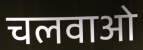
चलवाओ